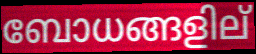
ബോധങ്ങളില്